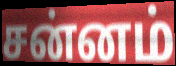
சன்னம்